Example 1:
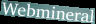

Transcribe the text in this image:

Webmineral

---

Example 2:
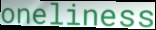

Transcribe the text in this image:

oneliness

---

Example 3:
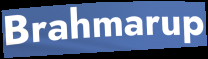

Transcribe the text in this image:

Brahmarup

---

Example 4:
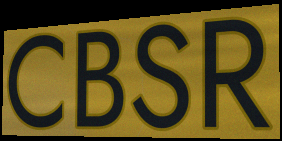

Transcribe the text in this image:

CBSR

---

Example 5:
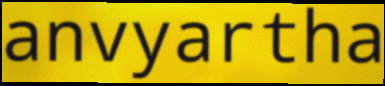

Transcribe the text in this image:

anvyartha